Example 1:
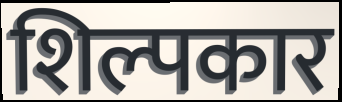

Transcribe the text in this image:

शिल्पकार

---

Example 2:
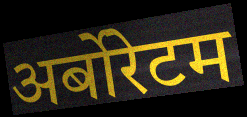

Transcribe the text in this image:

अर्बोरेटम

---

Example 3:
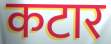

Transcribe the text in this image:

कटार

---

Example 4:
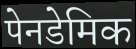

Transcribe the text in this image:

पेनडेमिक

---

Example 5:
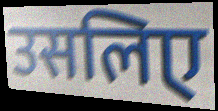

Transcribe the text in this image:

उसलिए